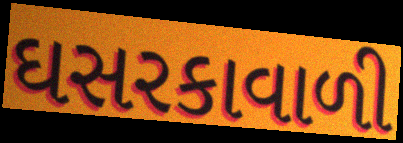
ઘસરકાવાળી